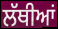
ਲੱਥੀਆਂ